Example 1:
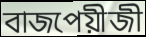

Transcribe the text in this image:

বাজপেয়ীজী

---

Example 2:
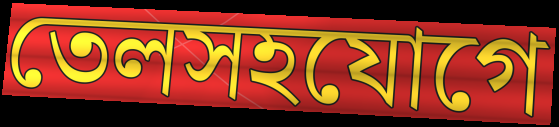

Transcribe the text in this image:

তেলসহযোগে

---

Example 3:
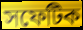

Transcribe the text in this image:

সফেটিক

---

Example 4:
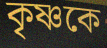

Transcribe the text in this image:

কৃষ্ণকে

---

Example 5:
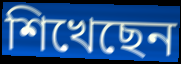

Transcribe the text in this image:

শিখেছেন